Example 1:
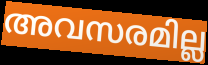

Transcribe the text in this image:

അവസരമില്ല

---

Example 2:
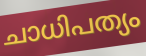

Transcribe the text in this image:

ചാധിപത്യം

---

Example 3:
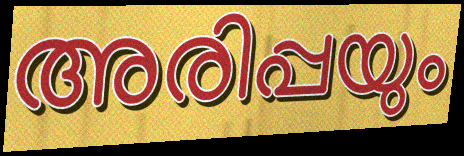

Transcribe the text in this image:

അരിപ്പയും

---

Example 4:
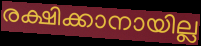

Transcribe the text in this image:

രക്ഷിക്കാനായില്ല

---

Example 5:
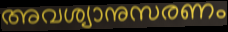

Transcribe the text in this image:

അവശ്യാനുസരണം